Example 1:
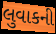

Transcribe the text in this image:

લુવાકની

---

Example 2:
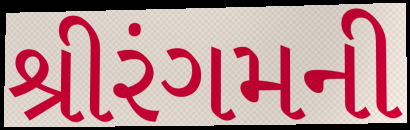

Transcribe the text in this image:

શ્રીરંગમની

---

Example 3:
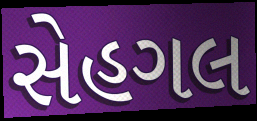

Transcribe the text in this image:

સેહગલ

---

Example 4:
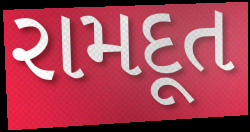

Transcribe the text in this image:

રામદૂત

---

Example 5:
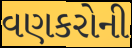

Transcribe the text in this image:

વણકરોની